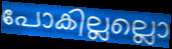
പോകില്ലല്ലൊ